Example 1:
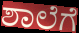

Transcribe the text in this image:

ಶಾಲೆಗೆ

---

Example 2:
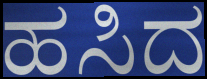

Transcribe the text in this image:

ಹಸಿದ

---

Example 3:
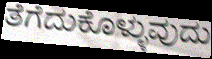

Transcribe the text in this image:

ತೆಗೆದುಕೊಳ್ಳುವುದು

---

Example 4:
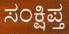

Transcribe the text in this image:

ಸಂಕ್ಷಿಪ್ತ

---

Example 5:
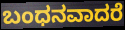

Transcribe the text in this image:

ಬಂಧನವಾದರೆ